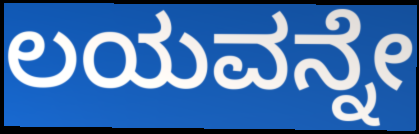
ಲಯವನ್ನೇ